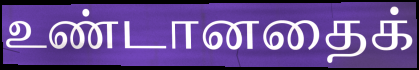
உண்டானதைக்